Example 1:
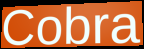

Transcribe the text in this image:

Cobra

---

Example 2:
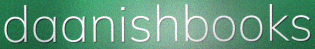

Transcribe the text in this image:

daanishbooks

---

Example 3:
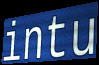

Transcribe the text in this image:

intu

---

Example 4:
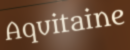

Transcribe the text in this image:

Aquitaine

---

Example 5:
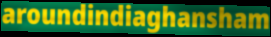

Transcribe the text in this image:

aroundindiaghansham